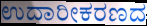
ಉದಾರೀಕರಣದ